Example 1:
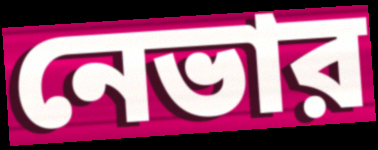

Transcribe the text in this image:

নেভার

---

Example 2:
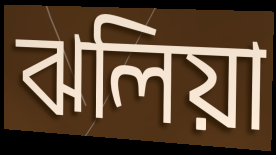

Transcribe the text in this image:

ঝলিয়া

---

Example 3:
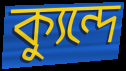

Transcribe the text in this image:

ক্যুন্দে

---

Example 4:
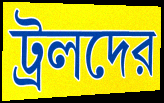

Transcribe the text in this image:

ট্রলদের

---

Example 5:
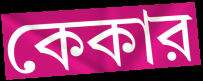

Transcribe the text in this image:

কেকার